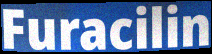
Furacilin